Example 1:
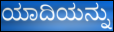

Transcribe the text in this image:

ಯಾದಿಯನ್ನು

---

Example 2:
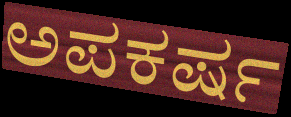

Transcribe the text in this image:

ಅಪಕರ್ಷ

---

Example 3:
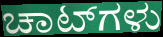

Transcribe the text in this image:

ಚಾಟ್‌ಗಳು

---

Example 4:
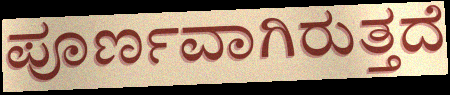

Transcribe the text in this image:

ಪೂರ್ಣವಾಗಿರುತ್ತದೆ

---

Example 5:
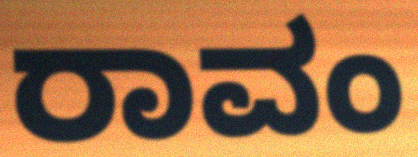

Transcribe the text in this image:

ರಾವಂ